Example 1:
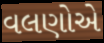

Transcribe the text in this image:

વલણોએ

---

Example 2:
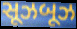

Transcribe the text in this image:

સૂઝબૂઝ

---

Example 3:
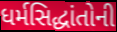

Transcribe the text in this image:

ધર્મસિદ્ધાંતોની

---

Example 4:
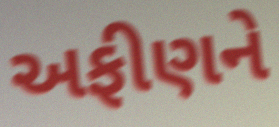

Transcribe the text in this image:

અફીણને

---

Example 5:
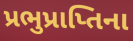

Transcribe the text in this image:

પ્રભુપ્રાપ્તિના